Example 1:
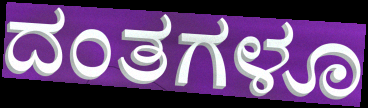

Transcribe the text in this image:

ದಂತಗಳೂ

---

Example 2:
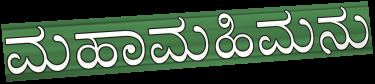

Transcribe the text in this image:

ಮಹಾಮಹಿಮನು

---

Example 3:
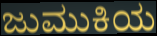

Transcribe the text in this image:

ಜುಮುಕಿಯ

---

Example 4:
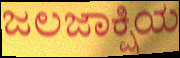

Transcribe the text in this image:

ಜಲಜಾಕ್ಷಿಯ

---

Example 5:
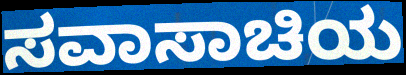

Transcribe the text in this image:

ಸವಾಸಾಚಿಯ